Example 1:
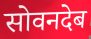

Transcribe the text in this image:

सोवनदेब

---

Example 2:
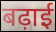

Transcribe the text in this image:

बढ़ाई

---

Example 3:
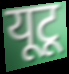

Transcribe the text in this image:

यूटू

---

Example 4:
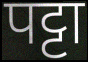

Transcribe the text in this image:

पट्टा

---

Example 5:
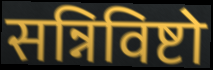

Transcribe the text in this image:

सन्निविष्टो